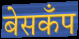
बेसकँप